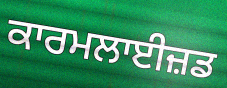
ਕਾਰਮਲਾਈਜ਼ਡ